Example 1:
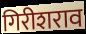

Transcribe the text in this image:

गिरीशराव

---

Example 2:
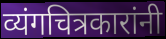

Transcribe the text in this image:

व्यंगचित्रकारांनी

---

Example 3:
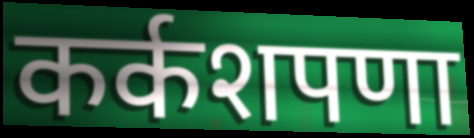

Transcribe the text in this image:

कर्कशपणा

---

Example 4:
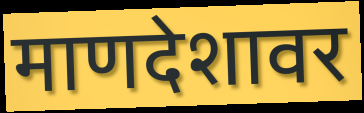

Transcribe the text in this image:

माणदेशावर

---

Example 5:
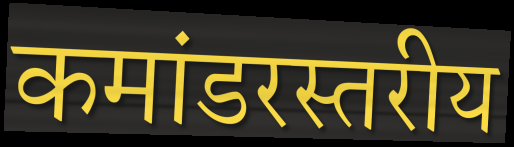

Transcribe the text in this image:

कमांडरस्तरीय